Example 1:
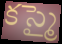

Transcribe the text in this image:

కస్మై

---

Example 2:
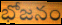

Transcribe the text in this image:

భోజనం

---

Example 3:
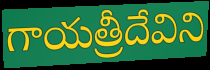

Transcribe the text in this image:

గాయత్రీదేవిని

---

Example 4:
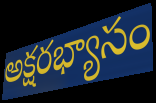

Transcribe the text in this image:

అక్షరభ్యాసం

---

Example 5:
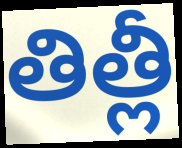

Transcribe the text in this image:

తిత్లీ